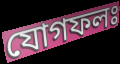
যোগফলঃ